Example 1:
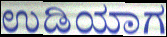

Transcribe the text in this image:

ಉಡಿಯಾಗ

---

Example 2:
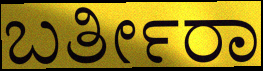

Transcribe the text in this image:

ಬರ್ತೀರಾ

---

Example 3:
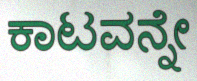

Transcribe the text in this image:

ಕಾಟವನ್ನೇ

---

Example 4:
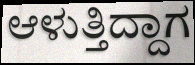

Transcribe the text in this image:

ಆಳುತ್ತಿದ್ದಾಗ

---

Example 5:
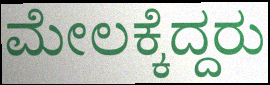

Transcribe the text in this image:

ಮೇಲಕ್ಕೆದ್ದರು